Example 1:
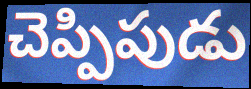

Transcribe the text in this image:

చెప్పిపుడు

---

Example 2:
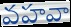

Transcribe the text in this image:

వహవా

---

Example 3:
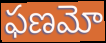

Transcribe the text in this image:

ఫణమో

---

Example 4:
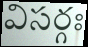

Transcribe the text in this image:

విసర్గః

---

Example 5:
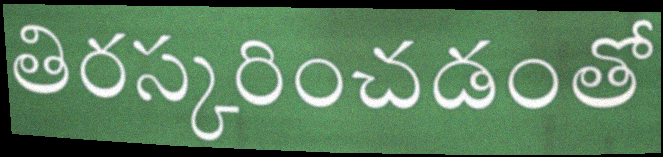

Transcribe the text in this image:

తిరస్కరించడంతో